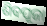
ଶିବପୂଜା